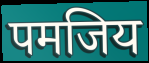
पमजिय